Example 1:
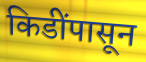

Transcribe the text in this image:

किडींपासून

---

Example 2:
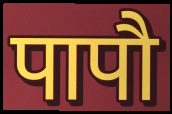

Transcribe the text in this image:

पापौ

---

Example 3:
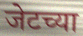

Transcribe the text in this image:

जेटच्या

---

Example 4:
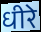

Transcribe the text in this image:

धीरे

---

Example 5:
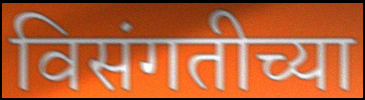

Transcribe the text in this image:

विसंगतीच्या